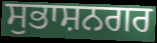
ਸੁਭਾਸ਼ਨਗਰ